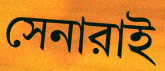
সেনারাই